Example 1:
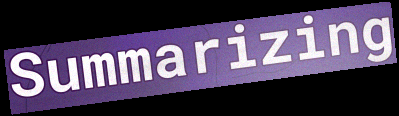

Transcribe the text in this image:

Summarizing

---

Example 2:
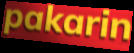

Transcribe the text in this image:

pakarin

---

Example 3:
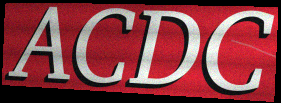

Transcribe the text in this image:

ACDC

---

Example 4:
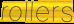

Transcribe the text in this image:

rollers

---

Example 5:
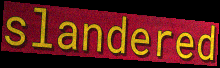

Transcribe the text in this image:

slandered